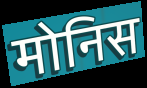
मोनिस